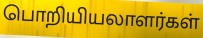
பொறியியலாளர்கள்